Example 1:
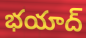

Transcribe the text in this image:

భయాద్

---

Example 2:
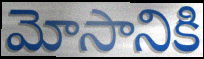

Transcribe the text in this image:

మోసానికి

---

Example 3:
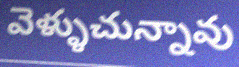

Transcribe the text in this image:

వెళ్ళుచున్నావు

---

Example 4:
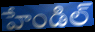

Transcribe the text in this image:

హేండిల్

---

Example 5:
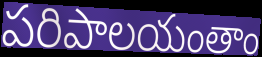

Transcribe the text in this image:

పరిపాలయంతాం